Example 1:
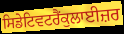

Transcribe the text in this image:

ਸਿਡੇਟਿਵਟਰੈਂਕੁਲਾਈਜ਼ਰ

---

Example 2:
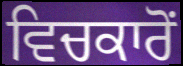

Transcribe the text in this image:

ਵਿਚਕਾਰੋਂ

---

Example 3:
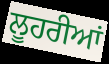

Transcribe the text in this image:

ਲੂਹਰੀਆਂ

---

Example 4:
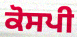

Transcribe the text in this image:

ਕੋਸਪੀ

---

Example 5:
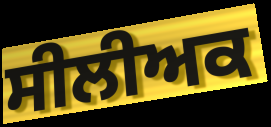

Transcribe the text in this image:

ਸੀਲੀਅਕ